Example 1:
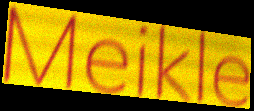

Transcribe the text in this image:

Meikle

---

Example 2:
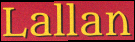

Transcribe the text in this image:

Lallan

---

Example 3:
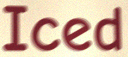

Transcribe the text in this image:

Iced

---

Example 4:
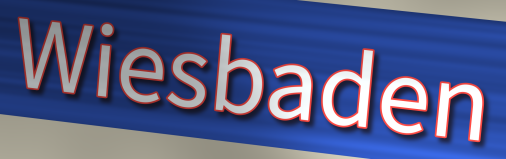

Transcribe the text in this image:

Wiesbaden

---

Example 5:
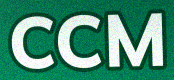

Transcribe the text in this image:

CCM